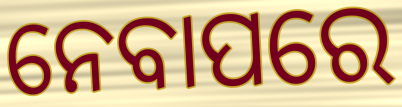
ନେବାପରେ